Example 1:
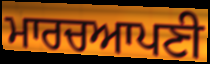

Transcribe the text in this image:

ਮਾਰਚਆਪਣੀ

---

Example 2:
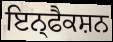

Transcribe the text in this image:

ਇਨ੍ਫੈਕਸ਼ਨ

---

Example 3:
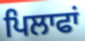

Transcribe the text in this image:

ਪਿਲਾਫਾਂ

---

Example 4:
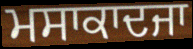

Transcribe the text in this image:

ਮਸਾਕਾਦਜਾ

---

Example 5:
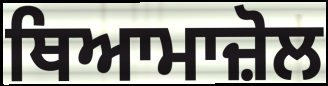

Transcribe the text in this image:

ਥਿਆਮਾਜ਼ੋਲ